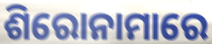
ଶିରୋନାମାରେ